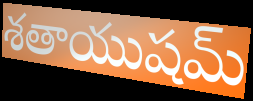
శతాయుషమ్